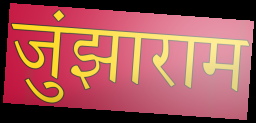
जुंझाराम